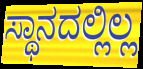
ಸ್ಥಾನದಲ್ಲಿಲ್ಲ